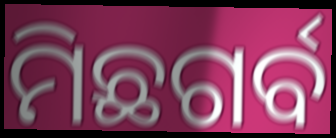
ମିଛଗର୍ବ